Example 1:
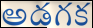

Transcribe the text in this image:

అడగక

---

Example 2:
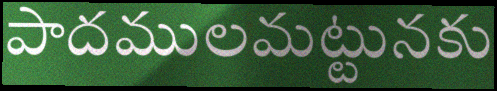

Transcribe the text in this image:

పాదములమట్టునకు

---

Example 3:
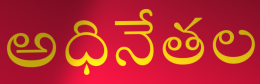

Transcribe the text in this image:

అధినేతల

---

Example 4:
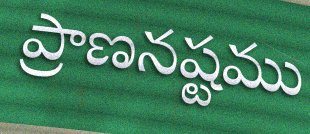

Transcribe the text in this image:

ప్రాణనష్టము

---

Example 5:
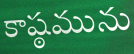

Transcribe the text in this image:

కాష్ఠమును